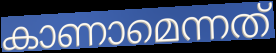
കാണാമെന്നത്